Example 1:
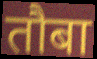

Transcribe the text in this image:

तौबा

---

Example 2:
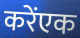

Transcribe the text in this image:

करेंएक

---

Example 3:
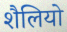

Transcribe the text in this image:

शैलियो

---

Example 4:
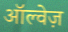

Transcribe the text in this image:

ऑल्वेज़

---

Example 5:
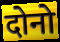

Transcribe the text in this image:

दोनो